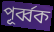
পূর্ব্বক